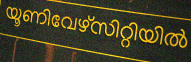
യൂണിവേഴ്സിറ്റിയിൽ